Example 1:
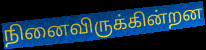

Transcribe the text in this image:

நினைவிருக்கின்றன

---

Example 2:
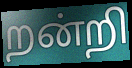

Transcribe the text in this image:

றன்றி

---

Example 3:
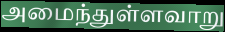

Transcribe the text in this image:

அமைந்துள்ளவாறு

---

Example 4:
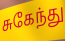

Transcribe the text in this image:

சுகேந்து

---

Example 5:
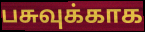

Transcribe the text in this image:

பசுவுக்காக